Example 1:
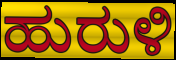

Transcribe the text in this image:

ಹುರುಳಿ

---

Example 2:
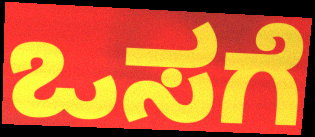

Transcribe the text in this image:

ಒಸಗೆ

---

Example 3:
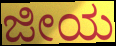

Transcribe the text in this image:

ಜೀಯ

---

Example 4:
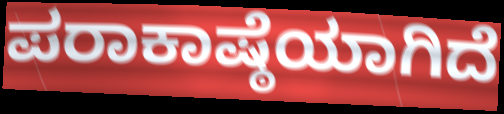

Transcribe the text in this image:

ಪರಾಕಾಷ್ಠೆಯಾಗಿದೆ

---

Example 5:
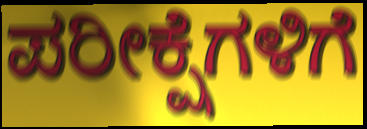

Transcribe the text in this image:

ಪರೀಕ್ಷೆಗಳಿಗೆ